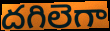
దగిలెగా